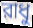
রাধু